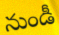
నుండీ